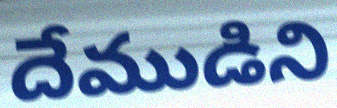
దేముడిని